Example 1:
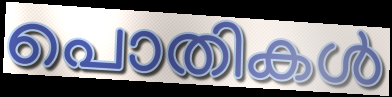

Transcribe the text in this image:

പൊതികൾ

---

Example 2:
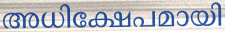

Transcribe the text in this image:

അധിക്ഷേപമായി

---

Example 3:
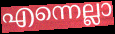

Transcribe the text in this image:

എന്നെല്ലാ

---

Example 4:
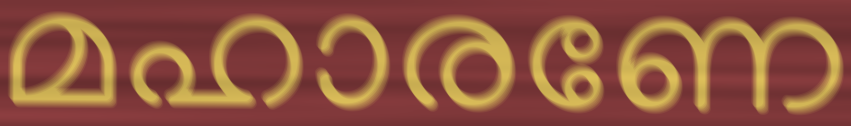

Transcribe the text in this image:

മഹാരണേ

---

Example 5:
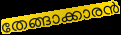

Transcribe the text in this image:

തേങ്ങാക്കാരൻ